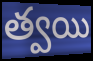
త్వయి